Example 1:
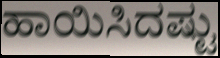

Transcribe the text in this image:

ಹಾಯಿಸಿದಷ್ಟು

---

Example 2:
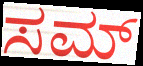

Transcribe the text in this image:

ಸಮ್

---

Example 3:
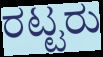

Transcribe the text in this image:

ರಟ್ಟರು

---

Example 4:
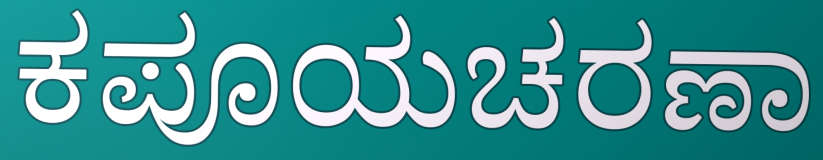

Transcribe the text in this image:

ಕಪೂಯಚರಣಾ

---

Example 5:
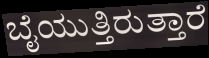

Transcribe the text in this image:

ಬೈಯುತ್ತಿರುತ್ತಾರೆ